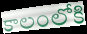
కాలంలోకి